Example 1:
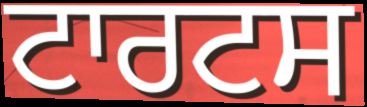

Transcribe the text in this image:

ਟਾਰਟਸ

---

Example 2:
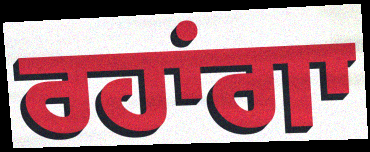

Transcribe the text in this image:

ਰਹਾਂਗਾ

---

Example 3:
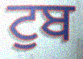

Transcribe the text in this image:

ਟੁਬ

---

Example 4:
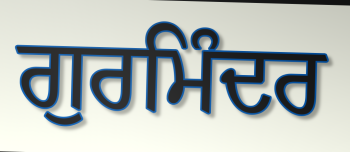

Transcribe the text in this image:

ਗੁਰਮਿੰਦਰ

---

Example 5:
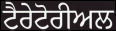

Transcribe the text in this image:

ਟੈਰੇਟੋਰੀਅਲ